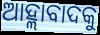
ଆହ୍ଲାବାଦକୁ